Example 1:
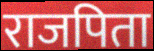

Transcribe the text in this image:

राजपिता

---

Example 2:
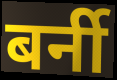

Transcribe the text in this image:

बर्नी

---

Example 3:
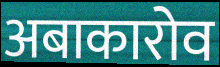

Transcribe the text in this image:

अबाकारोव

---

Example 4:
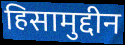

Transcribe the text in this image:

हिसामुद्दीन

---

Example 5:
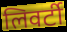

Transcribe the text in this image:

लिवर्टी